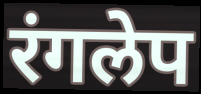
रंगलेप